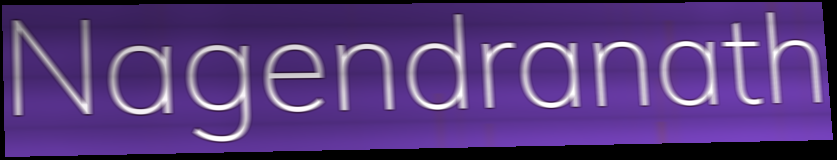
Nagendranath